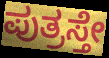
ಪುತ್ರಸ್ತೇ